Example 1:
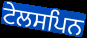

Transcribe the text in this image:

ਟੇਲਸਪਿਨ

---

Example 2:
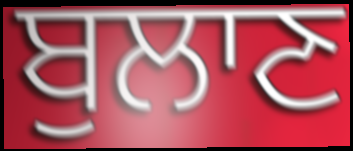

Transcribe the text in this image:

ਬੁਲਾਣ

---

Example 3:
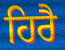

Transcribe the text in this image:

ਹਿਰੈ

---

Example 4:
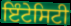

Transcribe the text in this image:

ਇੰਟੇਸਿਟੀ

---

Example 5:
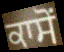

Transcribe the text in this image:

ਕਾਸੋਂ